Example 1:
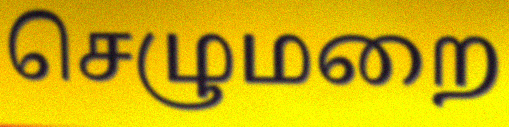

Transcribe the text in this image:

செழுமறை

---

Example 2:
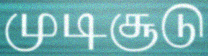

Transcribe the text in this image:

முடிசூடு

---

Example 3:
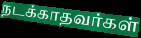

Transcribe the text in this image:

நடக்காதவர்கள்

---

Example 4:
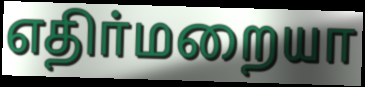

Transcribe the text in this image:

எதிர்மறையா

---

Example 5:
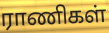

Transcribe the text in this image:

ராணிகள்